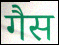
गैस